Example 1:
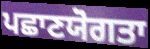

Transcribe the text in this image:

ਪਛਾਣਯੋਗਤਾ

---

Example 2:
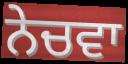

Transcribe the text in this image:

ਨੇਚਵਾ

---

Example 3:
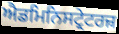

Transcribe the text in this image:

ਐਡਮਿਨਿਸਟ੍ਰੇਟਰਜ਼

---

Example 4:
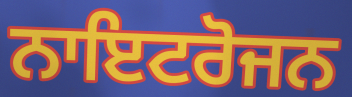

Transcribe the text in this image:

ਨਾਇਟਰੋਜਨ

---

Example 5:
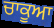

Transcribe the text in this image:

ਚਾਕੂਆ